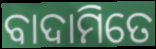
ବାଦାମିତେ